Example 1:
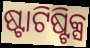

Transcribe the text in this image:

ଷ୍ଟାଟିଷ୍ଟିକ୍ସ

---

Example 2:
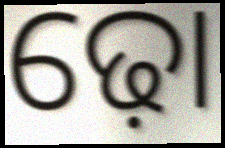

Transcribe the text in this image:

ଢ଼ୋ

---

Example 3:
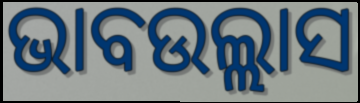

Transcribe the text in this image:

ଭାବଉଲ୍ଲାସ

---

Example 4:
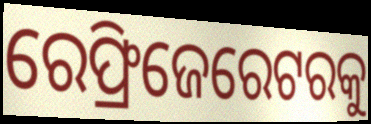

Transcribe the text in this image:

ରେଫ୍ରିଜେରେଟରକୁ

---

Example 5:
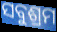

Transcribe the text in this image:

ସବୁଶ୍ରମ